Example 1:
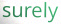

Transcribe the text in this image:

surely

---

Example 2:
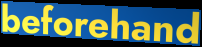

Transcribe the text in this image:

beforehand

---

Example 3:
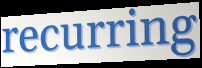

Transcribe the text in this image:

recurring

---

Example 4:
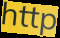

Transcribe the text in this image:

http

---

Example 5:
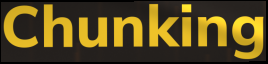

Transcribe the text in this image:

Chunking